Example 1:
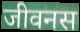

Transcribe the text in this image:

जीवनस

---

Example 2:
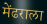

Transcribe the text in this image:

मेंढराला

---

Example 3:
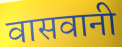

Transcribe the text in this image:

वासवानी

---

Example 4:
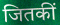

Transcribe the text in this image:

जितकीं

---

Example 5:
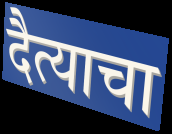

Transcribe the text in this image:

दैत्याचा